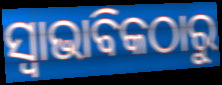
ସ୍ୱାଭାବିକଠାରୁ